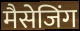
मैसेजिंग